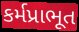
કર્મપ્રાભૂત